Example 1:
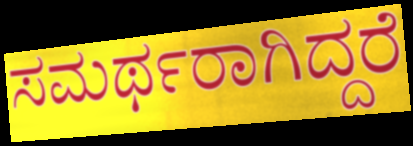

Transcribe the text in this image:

ಸಮರ್ಥರಾಗಿದ್ದರೆ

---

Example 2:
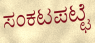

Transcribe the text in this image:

ಸಂಕಟಪಟ್ಟೆ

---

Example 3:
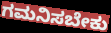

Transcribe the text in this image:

ಗಮನಿಸಬೇಕು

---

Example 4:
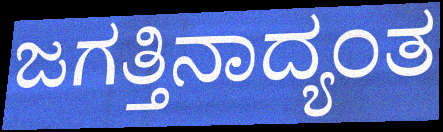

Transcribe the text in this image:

ಜಗತ್ತಿನಾದ್ಯಂತ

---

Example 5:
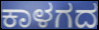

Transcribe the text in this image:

ಕಾಳಗದ